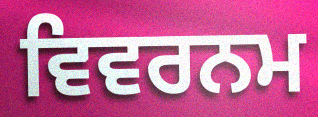
ਵਿਵਰਨਮ